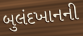
બુલંદખાનની